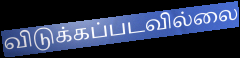
விடுக்கப்படவில்லை